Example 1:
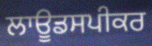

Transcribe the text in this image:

ਲਾਊਡਸਪੀਕਰ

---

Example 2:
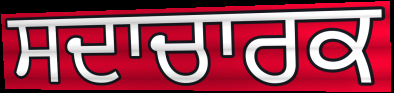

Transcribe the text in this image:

ਸਦਾਚਾਰਕ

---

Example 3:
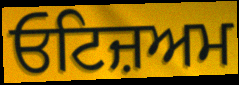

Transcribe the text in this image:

ਓਟਿਜ਼ਅਮ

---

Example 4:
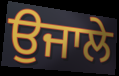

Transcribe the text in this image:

ਉਜਾਲੇ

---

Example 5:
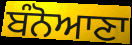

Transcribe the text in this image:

ਬੰਨੋਆਣਾ